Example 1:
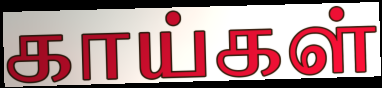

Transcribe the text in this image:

காய்கள்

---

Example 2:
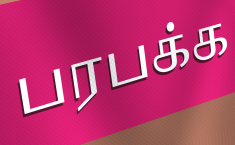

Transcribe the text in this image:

பரபக்க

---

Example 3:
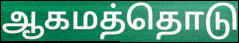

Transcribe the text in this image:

ஆகமத்தொடு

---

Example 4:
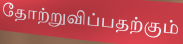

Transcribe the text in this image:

தோற்றுவிப்பதற்கும்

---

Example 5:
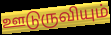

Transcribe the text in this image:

ஊடுருவியும்